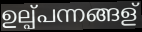
ഉല്പ്പന്നങ്ങള്